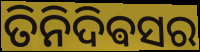
ତିନିଦିଵସର